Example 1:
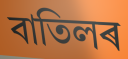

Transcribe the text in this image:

বাতিলৰ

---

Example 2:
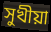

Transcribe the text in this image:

সুখীয়া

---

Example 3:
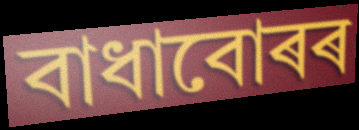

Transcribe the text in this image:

বাধাবোৰৰ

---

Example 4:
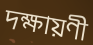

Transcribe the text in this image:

দক্ষায়ণী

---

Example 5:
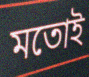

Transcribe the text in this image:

মতোই